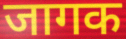
जागक